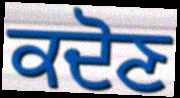
ਕਦੋਣ